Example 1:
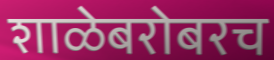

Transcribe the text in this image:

शाळेबरोबरच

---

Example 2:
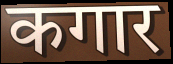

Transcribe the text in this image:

कगार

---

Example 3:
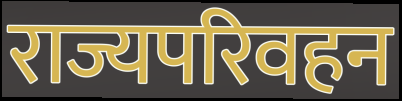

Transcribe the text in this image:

राज्यपरिवहन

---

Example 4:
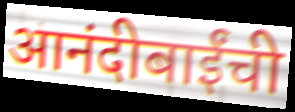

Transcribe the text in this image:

आनंदीबाईंची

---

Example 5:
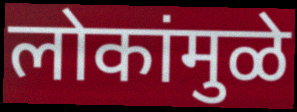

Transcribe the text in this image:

लोकांमुळे